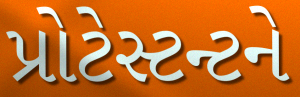
પ્રોટેસ્ટન્ટને